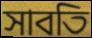
সাবতি